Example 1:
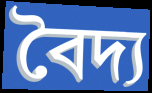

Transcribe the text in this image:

বৈদ্য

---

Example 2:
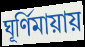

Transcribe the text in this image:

ঘূর্ণিমায়ায়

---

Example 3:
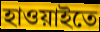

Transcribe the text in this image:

হাওয়াইতে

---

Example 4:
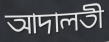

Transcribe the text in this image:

আদালতী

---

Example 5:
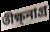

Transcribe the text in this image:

তীক্ষ্নাগ্র